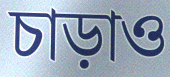
চাড়াও